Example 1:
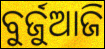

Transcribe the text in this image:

ବୁର୍ଜୁଆଜି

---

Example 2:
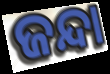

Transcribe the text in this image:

ଜନ୍ଦା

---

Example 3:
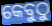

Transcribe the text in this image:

କେବୁଠୁ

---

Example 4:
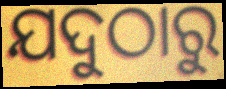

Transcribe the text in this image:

ଯଦୁଠାରୁ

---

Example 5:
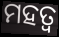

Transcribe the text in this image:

ମହତ୍ବ